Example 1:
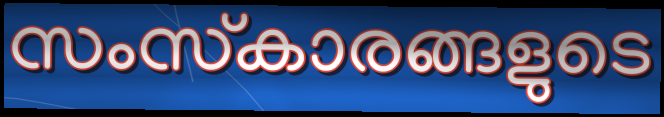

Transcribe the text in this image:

സംസ്‌കാരങ്ങളുടെ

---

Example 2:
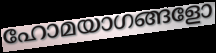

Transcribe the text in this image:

ഹോമയാഗങ്ങളോ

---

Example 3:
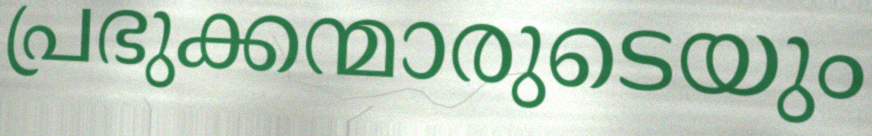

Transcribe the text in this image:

പ്രഭുക്കന്മാരുടെയും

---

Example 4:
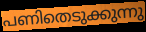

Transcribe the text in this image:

പണിതെടുക്കുന്നു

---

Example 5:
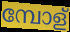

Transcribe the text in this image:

മ്പോള്